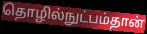
தொழில்நுட்பம்தான்